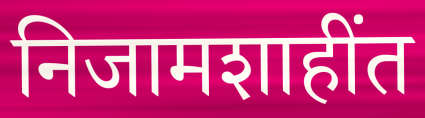
निजामशाहींत